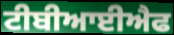
ਟੀਬੀਆਈਐਫ